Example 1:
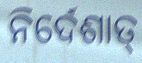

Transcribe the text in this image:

ନିର୍ଦେଶାତ୍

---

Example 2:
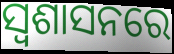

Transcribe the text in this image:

ସ୍ଵଶାସନରେ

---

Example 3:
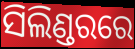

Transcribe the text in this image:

ସିଲିଣ୍ଡରରେ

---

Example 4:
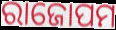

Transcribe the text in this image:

ରାଜୋପମ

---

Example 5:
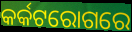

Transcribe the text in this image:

କର୍କଟରୋଗରେ